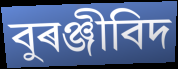
বুৰঞ্জীবিদ